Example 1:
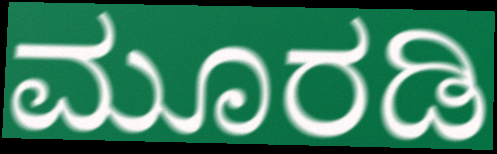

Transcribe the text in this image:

ಮೂರಡಿ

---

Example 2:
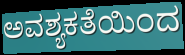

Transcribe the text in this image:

ಅವಶ್ಯಕತೆಯಿಂದ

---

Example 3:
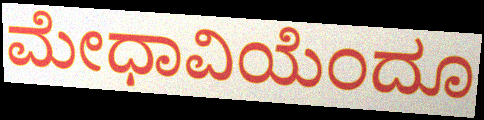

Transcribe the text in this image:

ಮೇಧಾವಿಯೆಂದೂ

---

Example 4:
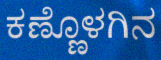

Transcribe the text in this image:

ಕಣ್ಣೊಳಗಿನ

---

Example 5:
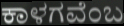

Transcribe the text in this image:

ಕಾಳಗವೆಂಬ